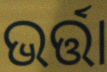
ଭର୍ତ୍ତା